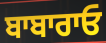
ਬਾਬਾਰਾਓ